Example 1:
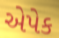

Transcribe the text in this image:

એપેક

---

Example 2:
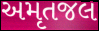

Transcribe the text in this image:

અમૃતજલ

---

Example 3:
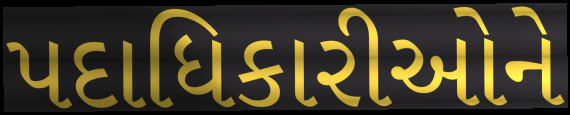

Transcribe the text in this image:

પદાધિકારીઓને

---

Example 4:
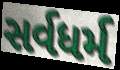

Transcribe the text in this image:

સર્વધર્મ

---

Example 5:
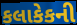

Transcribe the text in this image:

કલાકેકની